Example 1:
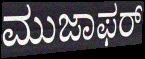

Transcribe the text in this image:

ಮುಜಾಫರ್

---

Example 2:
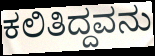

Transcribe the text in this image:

ಕಲಿತಿದ್ದವನು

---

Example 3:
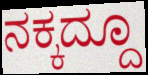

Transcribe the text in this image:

ನಕ್ಕದ್ದೂ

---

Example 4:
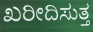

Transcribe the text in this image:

ಖರೀದಿಸುತ್ತ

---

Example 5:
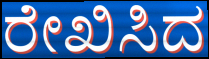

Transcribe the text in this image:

ರೇಖಿಸಿದ